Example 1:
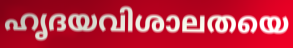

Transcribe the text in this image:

ഹൃദയവിശാലതയെ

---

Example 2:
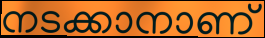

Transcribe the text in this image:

നടക്കാനാണ്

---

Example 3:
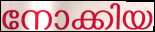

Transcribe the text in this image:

നോക്കിയ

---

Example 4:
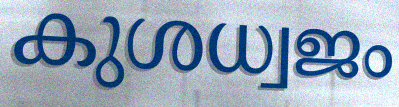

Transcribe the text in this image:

കുശധ്വജം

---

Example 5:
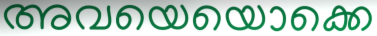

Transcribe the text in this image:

അവയെയൊക്കെ